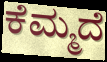
ಕೆಮ್ಮದೆ